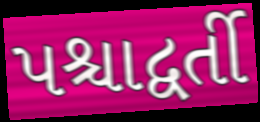
પશ્ચાદ્વર્તી